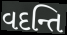
વદન્તિ